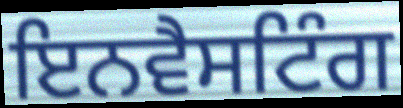
ਇਨਵੈਸਟਿੰਗ